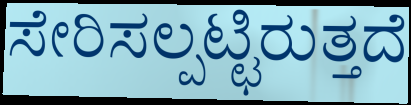
ಸೇರಿಸಲ್ಪಟ್ಟಿರುತ್ತದೆ